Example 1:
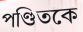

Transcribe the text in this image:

পণ্ডিতকে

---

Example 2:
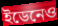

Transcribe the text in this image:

ইডেনেও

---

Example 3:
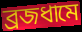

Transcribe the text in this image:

ব্রজধামে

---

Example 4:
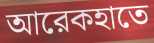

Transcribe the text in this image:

আরেকহাতে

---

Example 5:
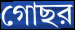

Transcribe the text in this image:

গোছর